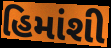
હિમાંશી